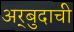
अर्बुदाची